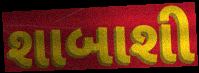
શાબાશી